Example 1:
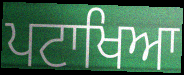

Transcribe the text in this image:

ਪਟਾਖਿਆ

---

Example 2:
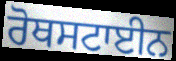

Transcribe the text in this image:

ਰੋਥਸਟਾਈਨ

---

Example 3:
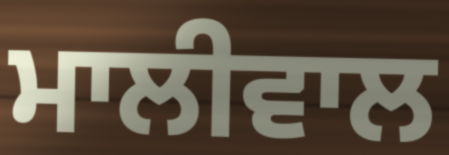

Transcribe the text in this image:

ਮਾਲੀਵਾਲ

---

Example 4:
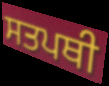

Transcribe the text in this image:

ਸਤਪਥੀ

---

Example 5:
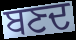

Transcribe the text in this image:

ਬਣਦ